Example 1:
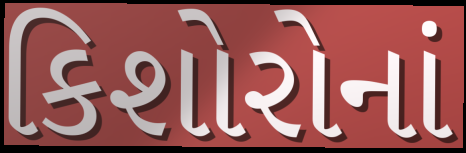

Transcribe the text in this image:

કિશોરોનાં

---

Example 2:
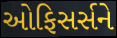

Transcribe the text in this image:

ઓફિસર્સને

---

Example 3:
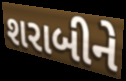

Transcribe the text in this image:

શરાબીને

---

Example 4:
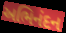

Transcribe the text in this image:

અભિનંદન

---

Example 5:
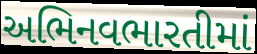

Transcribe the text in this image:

અભિનવભારતીમાં